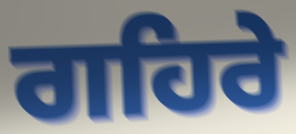
ਗਹਿਰੇ